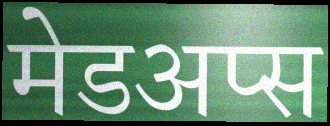
मेडअप्स